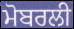
ਮੋਬਰਲੀ